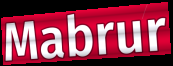
Mabrur